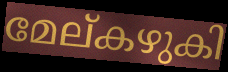
മേല്കഴുകി